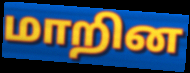
மாறின